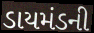
ડાયમંડની